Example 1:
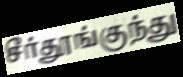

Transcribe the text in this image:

சீர்தூங்குந்து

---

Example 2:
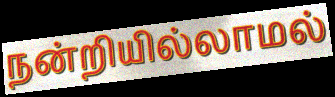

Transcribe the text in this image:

நன்றியில்லாமல்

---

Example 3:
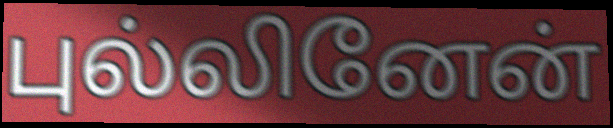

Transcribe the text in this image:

புல்லினேன்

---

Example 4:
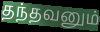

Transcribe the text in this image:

தந்தவனும்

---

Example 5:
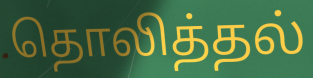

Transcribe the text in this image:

தொலித்தல்